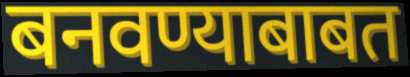
बनवण्याबाबत